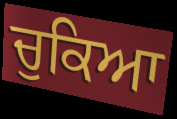
ਚੁਕਿਆ